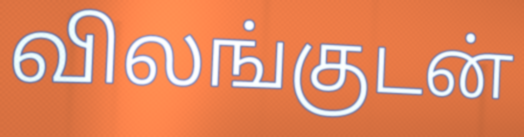
விலங்குடன்